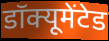
डॉक्यूमेंटेड